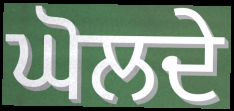
ਘੋਲਦੇ